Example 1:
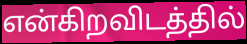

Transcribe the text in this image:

என்கிறவிடத்தில்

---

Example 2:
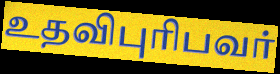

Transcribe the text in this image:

உதவிபுரிபவர்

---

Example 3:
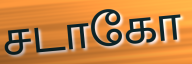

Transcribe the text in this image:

சடாகோ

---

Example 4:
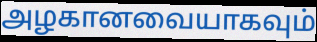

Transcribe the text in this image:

அழகானவையாகவும்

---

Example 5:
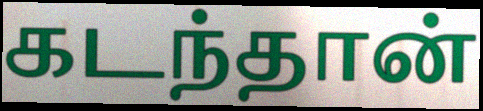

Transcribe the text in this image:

கடந்தான்